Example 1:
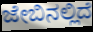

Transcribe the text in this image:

ಜೇಬಿನಲ್ಲಿದೆ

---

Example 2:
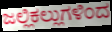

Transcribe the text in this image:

ಜಲ್ಲಿಕಲ್ಲುಗಳಿಂದ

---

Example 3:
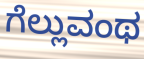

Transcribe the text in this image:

ಗೆಲ್ಲುವಂಥ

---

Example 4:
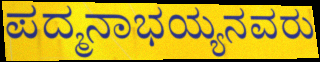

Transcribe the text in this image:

ಪದ್ಮನಾಭಯ್ಯನವರು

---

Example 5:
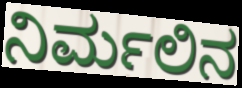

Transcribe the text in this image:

ನಿರ್ಮಲಿನ